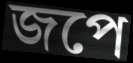
জপে